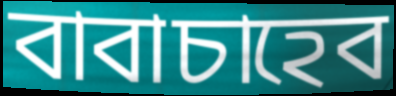
বাবাচাহেব